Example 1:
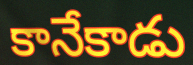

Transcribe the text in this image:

కానేకాడు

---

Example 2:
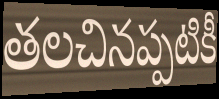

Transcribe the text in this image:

తలచినప్పటికీ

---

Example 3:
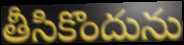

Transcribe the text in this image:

తీసికొందును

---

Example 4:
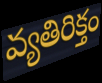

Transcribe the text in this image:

వ్యతిరిక్తం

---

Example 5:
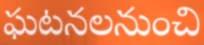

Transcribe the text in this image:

ఘటనలనుంచి